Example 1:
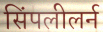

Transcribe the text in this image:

सिंपलीलर्न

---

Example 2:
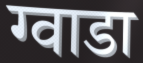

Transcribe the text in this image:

ग्वाडा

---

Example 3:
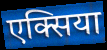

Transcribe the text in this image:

एक्सिया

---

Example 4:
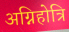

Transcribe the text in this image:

अग्निहोत्रि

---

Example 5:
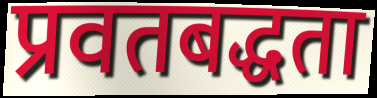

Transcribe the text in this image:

प्रवतबद्धता